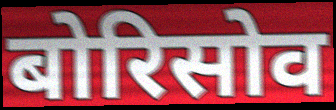
बोरिसोव